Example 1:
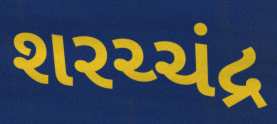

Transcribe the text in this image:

શરચ્ચંદ્ર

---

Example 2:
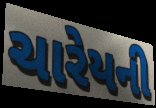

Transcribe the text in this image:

ચારેયની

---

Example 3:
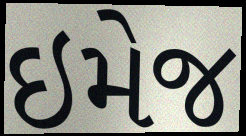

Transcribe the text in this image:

ઇમેજ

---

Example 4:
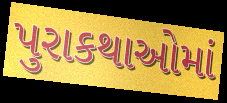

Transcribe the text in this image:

પુરાકથાઓમાં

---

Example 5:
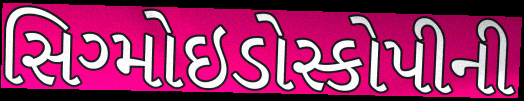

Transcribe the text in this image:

સિગ્મોઇડોસ્કોપીની